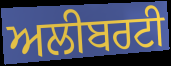
ਅਲੀਬਰਟੀ